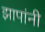
झापांनी